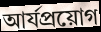
আর্যপ্রয়োগ